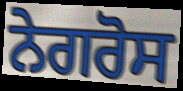
ਨੇਗਰੋਸ